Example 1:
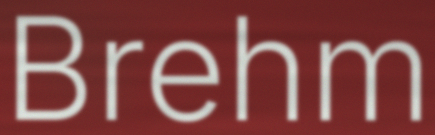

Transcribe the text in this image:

Brehm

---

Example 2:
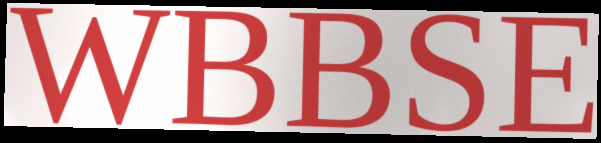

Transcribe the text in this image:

WBBSE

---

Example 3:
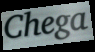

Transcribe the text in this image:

Chega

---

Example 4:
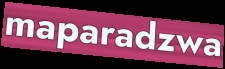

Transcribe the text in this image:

maparadzwa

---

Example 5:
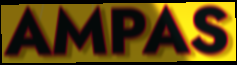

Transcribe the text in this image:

AMPAS